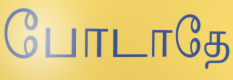
போடாதே